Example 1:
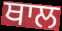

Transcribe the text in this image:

ਥਾਲ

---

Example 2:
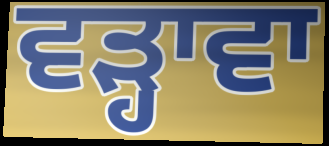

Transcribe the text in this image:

ਵੜ੍ਹਾਵਾ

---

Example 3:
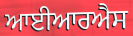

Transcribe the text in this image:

ਆਈਆਰਐਸ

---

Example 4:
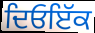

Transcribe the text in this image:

ਦਿਓਇੱਕ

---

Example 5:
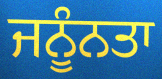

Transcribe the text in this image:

ਜਨੂੰਨਤਾ